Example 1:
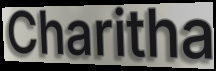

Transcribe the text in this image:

Charitha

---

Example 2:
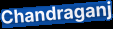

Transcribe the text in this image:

Chandraganj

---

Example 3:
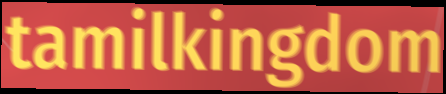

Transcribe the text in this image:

tamilkingdom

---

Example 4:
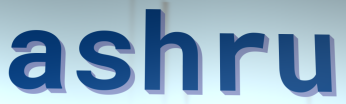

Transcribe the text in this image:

ashru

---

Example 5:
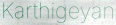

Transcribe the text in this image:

Karthigeyan